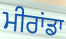
ਮੀਰਾਂਡਾ